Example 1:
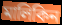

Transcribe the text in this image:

মালিকিন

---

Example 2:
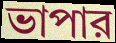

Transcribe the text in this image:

ভাপার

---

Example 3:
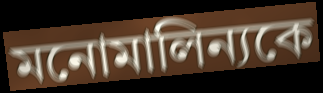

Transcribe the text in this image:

মনোমালিন্যকে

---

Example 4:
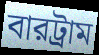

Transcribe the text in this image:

বারট্রাম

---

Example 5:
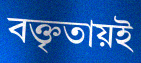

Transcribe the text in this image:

বক্তৃতায়ই